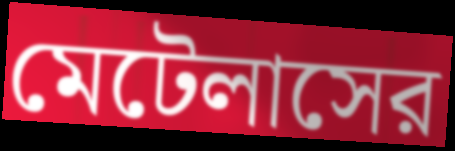
মেটেলাসের